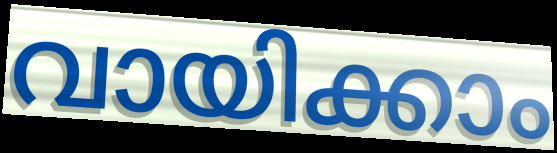
വായിക്കാം